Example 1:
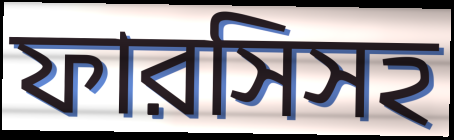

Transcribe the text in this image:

ফারসিসহ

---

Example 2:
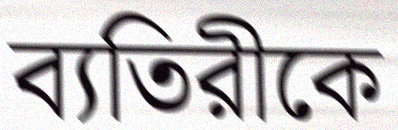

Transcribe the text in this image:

ব্যতিরীকে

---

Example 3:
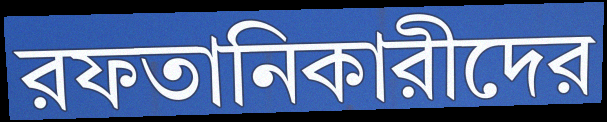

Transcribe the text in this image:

রফতানিকারীদের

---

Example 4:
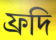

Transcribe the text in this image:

ফ্রদি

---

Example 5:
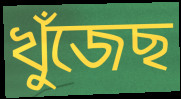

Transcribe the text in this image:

খুঁজেছ